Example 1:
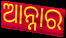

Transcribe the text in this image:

ଆନ୍ନାର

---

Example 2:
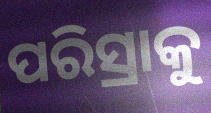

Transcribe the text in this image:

ପରିସ୍ରାକୁ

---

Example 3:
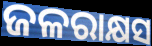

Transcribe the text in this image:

ଜଳରାକ୍ଷସ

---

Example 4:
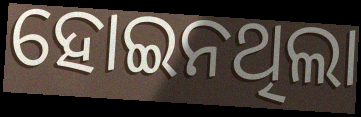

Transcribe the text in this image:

ହୋଇନଥିଲା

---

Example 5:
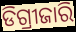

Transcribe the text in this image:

ଡିଗ୍ରୀଜାରି